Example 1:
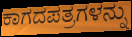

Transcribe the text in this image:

ಕಾಗದಪತ್ರಗಳನ್ನು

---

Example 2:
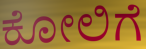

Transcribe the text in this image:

ಕೋಲಿಗೆ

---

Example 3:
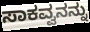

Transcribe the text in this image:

ಸಾಕವ್ವನನ್ನು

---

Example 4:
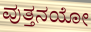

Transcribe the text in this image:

ವುತ್ತನಯೋ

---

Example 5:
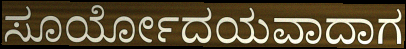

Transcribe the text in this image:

ಸೂರ್ಯೋದಯವಾದಾಗ